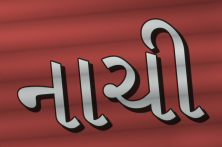
નાચી